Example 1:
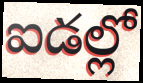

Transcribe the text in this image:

ఐడల్లో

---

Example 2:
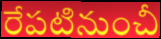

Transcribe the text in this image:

రేపటినుంచీ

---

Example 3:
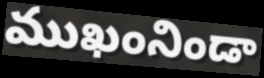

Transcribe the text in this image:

ముఖంనిండా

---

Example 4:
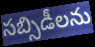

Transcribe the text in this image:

సబ్సిడీలను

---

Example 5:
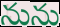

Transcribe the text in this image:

నును